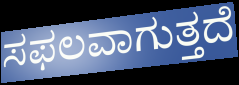
ಸಫಲವಾಗುತ್ತದೆ